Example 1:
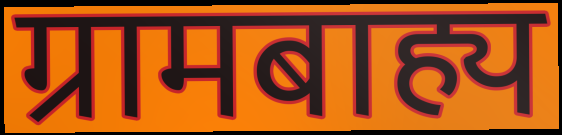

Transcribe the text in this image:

ग्रामबाह्य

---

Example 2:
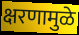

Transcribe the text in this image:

क्षरणामुळे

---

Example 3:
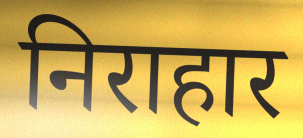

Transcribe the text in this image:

निराहार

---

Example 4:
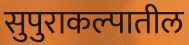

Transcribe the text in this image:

सुपुराकल्पातील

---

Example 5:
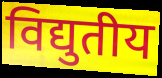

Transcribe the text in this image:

विद्युतीय